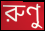
ৰুণু